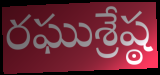
రఘుశ్రేష్ఠ